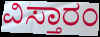
ವಿಸ್ತಾರಂ